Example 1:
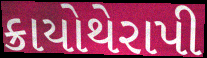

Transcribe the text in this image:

ક્રાયોથેરાપી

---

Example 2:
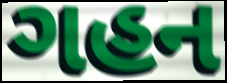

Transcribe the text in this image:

ગહન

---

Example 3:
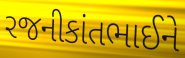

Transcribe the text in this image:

રજનીકાંતભાઈને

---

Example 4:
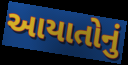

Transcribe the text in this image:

આયાતોનું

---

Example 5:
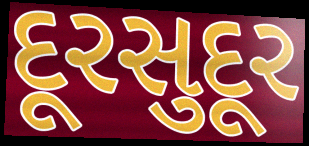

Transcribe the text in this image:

દૂરસુદૂર